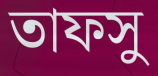
তাফসু